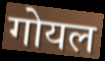
गोयल